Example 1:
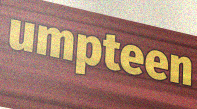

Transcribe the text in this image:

umpteen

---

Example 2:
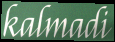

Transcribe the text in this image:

kalmadi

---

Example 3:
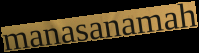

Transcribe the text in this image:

manasanamah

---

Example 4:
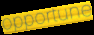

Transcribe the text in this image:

opportune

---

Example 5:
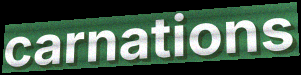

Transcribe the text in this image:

carnations